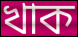
খাক